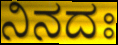
ನಿನದಃ